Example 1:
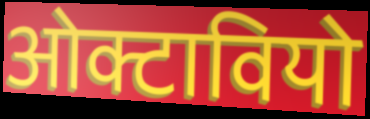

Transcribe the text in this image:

ओक्टावियो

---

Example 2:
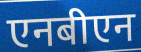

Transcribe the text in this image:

एनबीएन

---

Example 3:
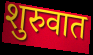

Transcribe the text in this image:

शुरुवात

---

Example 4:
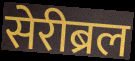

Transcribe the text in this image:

सेरीब्रल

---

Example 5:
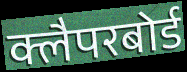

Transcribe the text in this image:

क्लैपरबोर्ड